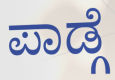
ಪಾಡ್ಗೆ